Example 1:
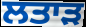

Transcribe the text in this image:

ਲਤਾੜ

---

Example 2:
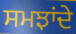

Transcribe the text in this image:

ਸਮਝਾਂਦੇ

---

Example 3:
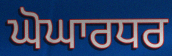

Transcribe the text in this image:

ਘੋਘਾਰਧਰ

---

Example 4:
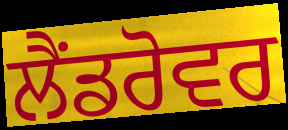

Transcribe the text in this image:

ਲੈਂਡਰੋਵਰ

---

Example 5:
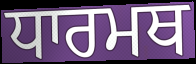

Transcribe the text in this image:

ਧਾਰਮਥ